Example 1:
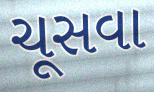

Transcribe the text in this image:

ચૂસવા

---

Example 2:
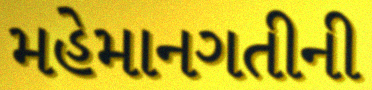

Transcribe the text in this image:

મહેમાનગતીની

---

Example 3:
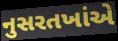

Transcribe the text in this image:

નુસરતખાંએ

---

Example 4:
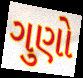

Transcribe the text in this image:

ગુણો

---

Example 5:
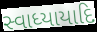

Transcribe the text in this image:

સ્વાધ્યાયાદિ